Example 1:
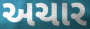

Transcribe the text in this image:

અચાર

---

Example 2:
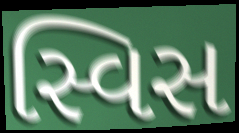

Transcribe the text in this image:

સ્વિસ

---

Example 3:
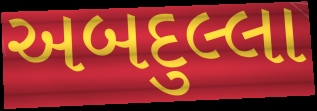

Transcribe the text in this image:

અબદુલ્લા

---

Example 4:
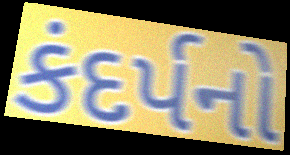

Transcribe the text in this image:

કંદર્પનો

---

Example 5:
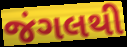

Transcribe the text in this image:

જંગલથી